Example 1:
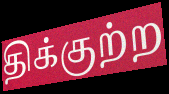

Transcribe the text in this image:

திக்குற்ற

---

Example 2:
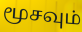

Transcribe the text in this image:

மூசவும்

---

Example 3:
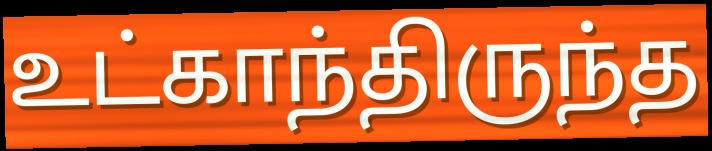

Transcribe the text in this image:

உட்காந்திருந்த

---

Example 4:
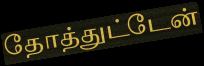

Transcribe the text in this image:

தோத்துட்டேன்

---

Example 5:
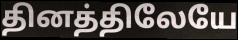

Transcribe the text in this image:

தினத்திலேயே